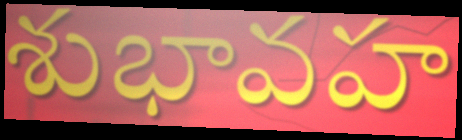
శుభావహ